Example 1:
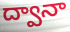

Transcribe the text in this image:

ద్వానా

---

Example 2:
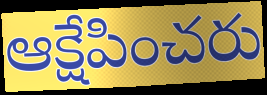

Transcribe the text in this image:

ఆక్షేపించరు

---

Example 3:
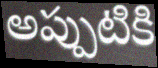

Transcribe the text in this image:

అప్పుటికి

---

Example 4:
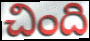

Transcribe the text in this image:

చింది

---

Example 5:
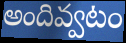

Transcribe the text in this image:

అందివ్వటం